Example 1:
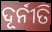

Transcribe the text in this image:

ଦୂର୍ନୀତି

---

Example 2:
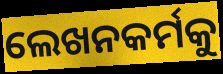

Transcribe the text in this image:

ଲେଖନକର୍ମକୁ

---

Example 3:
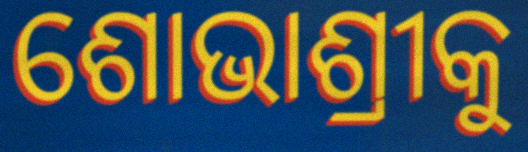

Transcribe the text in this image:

ଶୋଭାଶ୍ରୀକୁ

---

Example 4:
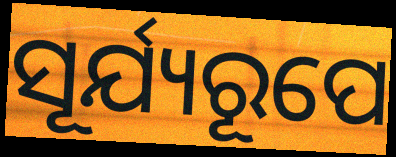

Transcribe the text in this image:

ସୂର୍ଯ୍ୟରୂପେ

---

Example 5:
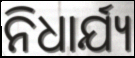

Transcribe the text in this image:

ନିଧାର୍ଯ୍ୟ